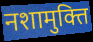
नशामुक्ति